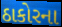
ઠાકોરના